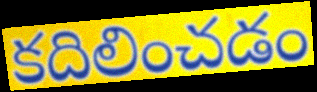
కదిలించడం